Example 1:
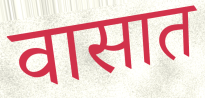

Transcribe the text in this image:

वासात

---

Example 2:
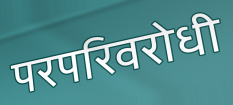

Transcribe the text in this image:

परपरिवरोधी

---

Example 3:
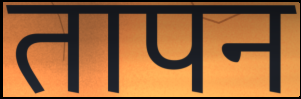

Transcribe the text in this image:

तापन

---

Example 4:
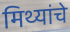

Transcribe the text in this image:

मिथ्यांचे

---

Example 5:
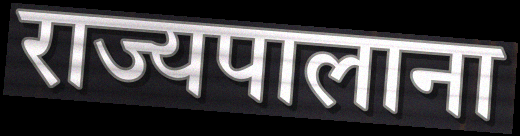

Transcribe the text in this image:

राज्यपालाना